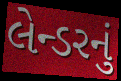
લેન્ડરનું